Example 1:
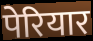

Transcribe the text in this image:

पेरियार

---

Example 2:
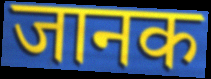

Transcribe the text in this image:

जानक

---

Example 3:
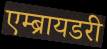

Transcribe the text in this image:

एम्ब्रायडरी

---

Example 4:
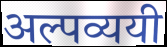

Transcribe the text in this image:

अल्पव्ययी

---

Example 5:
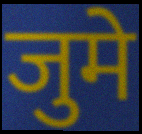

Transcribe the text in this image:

जुमे